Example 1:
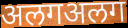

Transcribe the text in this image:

अलगअलग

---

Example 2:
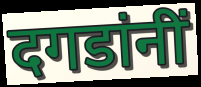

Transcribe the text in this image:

दगडांनीं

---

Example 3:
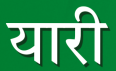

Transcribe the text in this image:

यारी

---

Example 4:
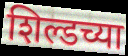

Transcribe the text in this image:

शिल्डच्या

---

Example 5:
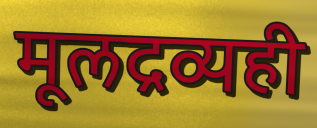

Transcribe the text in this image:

मूलद्रव्यही